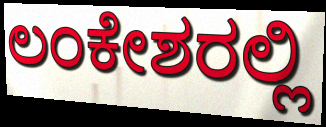
ಲಂಕೇಶರಲ್ಲಿ